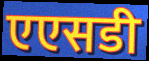
एएसडी